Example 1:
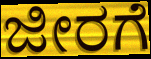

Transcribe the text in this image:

ಜೀರಗೆ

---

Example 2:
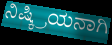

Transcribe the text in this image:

ನಿಷ್ಕ್ರಿಯನಾಗಿ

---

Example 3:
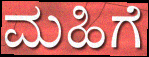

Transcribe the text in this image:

ಮಹಿಗೆ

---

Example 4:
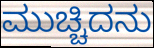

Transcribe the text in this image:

ಮುಚ್ಚಿದನು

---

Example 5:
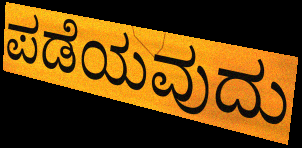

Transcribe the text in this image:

ಪಡೆಯವುದು